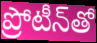
ప్రోటీన్‌తో